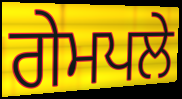
ਗੇਮਪਲੇ